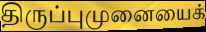
திருப்புமுனையைக்